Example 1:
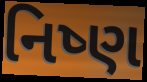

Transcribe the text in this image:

નિષ્ણ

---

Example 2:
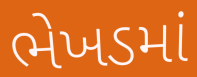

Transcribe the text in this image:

ભેખડમાં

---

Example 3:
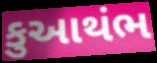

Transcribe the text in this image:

કુઆથંભ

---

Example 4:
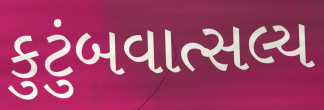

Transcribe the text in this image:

કુટુંબવાત્સલ્ય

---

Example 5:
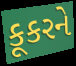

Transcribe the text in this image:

કૂકરને